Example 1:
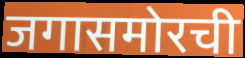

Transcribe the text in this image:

जगासमोरची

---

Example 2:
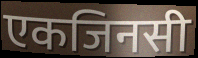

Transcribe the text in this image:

एकजिनसी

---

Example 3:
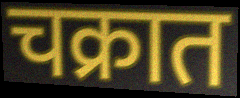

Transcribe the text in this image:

चक्रात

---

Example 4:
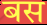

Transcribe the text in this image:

बस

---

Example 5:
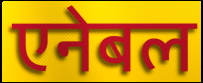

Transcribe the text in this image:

एनेबल